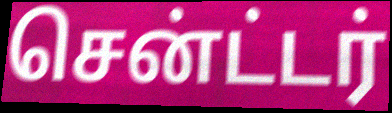
சென்ட்டர்